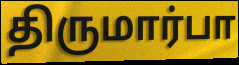
திருமார்பா